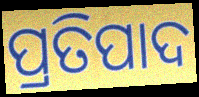
ପ୍ରତିପାଦ